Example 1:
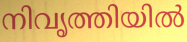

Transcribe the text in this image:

നിവൃത്തിയിൽ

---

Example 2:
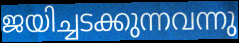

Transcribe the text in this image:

ജയിച്ചടക്കുന്നവന്നു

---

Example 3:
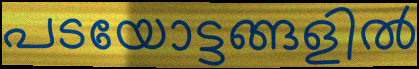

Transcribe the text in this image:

പടയോട്ടങ്ങളിൽ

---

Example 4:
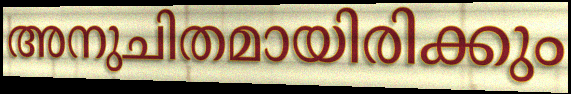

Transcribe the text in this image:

അനുചിതമായിരിക്കും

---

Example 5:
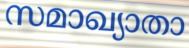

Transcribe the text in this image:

സമാഖ്യാതാ